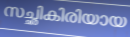
സച്ഛികിരിയായ